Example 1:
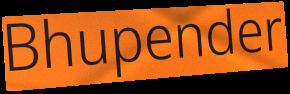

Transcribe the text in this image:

Bhupender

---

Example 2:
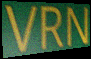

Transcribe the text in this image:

VRN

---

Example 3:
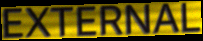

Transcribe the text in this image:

EXTERNAL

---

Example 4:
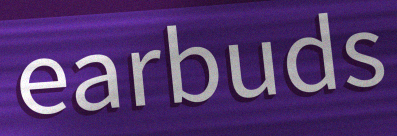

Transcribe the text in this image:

earbuds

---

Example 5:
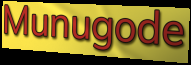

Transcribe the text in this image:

Munugode